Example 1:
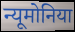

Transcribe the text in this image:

न्यूमोनिया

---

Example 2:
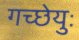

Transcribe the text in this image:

गच्छेयुः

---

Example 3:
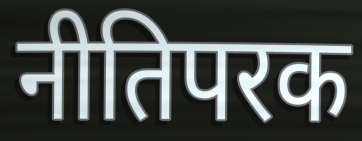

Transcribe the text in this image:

नीतिपरक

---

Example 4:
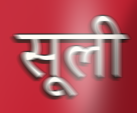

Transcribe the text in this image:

सूली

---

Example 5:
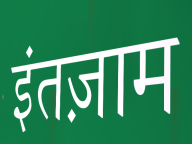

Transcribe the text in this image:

इंतज़ाम